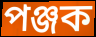
পঞ্জক